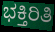
ಭಕ್ತಿರಿತಿ